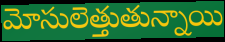
మోసులెత్తుతున్నాయి